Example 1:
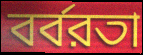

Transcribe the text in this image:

বর্বরতা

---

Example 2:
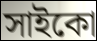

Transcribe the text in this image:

সাইকো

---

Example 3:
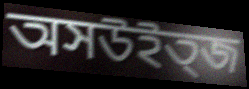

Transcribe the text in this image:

অসউইত্জ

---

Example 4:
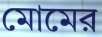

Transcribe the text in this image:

মোমের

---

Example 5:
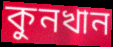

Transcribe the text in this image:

কুনখান